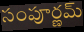
సంపూర్ణమ్